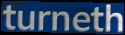
turneth